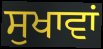
ਸੁਖਾਵਾਂ